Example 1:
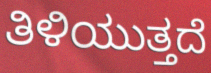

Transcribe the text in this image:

ತಿಳಿಯುತ್ತದೆ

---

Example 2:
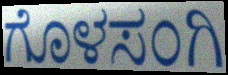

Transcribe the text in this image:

ಗೊಳಸಂಗಿ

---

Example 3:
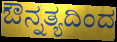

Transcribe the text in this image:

ಔನ್ನತ್ಯದಿಂದ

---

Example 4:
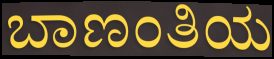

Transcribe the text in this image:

ಬಾಣಂತಿಯ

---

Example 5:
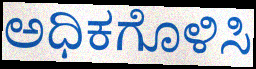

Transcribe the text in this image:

ಅಧಿಕಗೊಳಿಸಿ